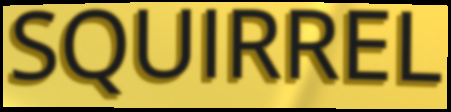
SQUIRREL